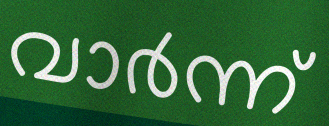
വാർന്ന്